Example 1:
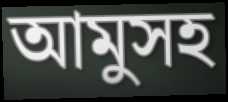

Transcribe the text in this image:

আমুসহ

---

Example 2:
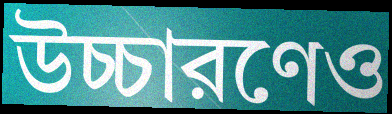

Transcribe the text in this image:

উচ্চারণেও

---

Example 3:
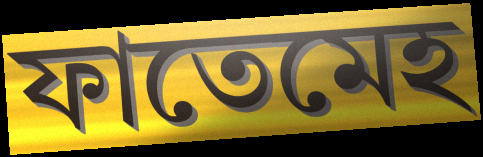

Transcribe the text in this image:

ফাতেমেহ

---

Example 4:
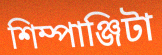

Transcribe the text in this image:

শিম্পাঞ্জিটা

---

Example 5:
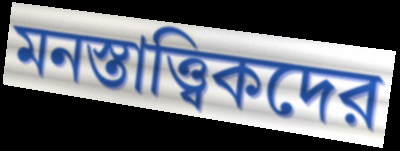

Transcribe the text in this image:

মনস্তাত্ত্বিকদের